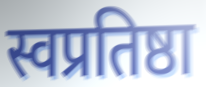
स्वप्रतिष्ठा